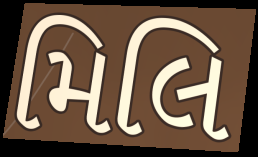
મિલિ